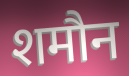
शमौन